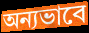
অন্যভাবে